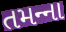
તમન્‍ના